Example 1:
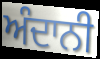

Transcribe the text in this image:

ਅੰਦਾਨੀ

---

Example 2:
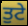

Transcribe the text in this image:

ਤੁਟੇ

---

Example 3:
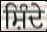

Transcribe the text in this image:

ਸ਼ਿੰਦੇ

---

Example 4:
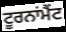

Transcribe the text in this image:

ਟੂਰਨਾਂਮੈਂਟ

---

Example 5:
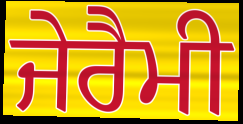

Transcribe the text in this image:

ਜੇਰੈਮੀ